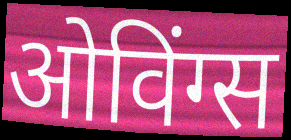
ओविंग्स